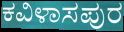
ಕವಿಳಾಸಪುರ